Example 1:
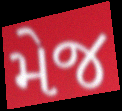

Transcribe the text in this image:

મેજ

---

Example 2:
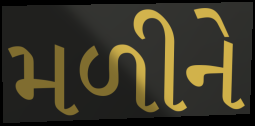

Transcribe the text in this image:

મળીને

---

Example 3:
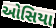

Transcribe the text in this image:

ઓસિયા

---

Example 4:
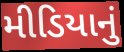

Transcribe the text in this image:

મીડિયાનું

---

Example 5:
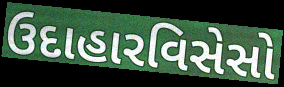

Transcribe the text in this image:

ઉદાહારવિસેસો